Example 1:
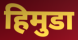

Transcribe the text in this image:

हिमुडा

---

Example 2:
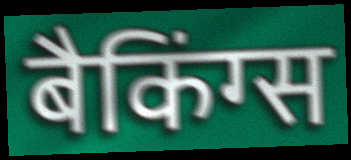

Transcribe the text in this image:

बैकिंग्स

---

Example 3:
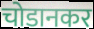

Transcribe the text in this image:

चोडानकर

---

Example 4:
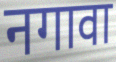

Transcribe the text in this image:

नगावा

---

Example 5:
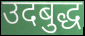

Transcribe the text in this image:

उदबुद्ध